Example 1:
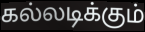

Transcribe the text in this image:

கல்லடிக்கும்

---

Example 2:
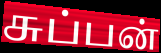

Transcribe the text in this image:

சுப்பன்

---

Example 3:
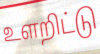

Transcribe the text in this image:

உளறிட்டு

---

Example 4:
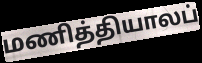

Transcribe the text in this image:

மணித்தியாலப்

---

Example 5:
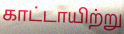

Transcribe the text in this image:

காட்டாயிற்று